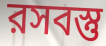
রসবস্তু